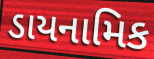
ડાયનામિક